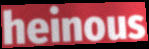
heinous